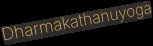
Dharmakathanuyoga